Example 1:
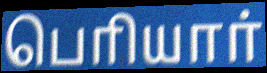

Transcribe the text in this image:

பெரியார்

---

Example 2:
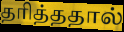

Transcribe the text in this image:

தரித்ததால்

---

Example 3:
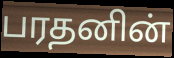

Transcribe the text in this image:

பரதனின்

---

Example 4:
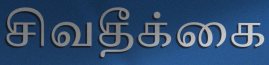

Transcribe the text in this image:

சிவதீக்கை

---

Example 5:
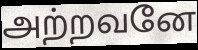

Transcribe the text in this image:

அற்றவனே